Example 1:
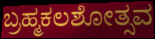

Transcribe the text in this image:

ಬ್ರಹ್ಮಕಲಶೋತ್ಸವ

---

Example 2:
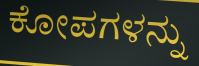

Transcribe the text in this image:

ಕೋಪಗಳನ್ನು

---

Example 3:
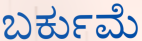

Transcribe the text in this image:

ಬರ್ಕುಮೆ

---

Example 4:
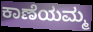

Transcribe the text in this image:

ಕಾಣೆಯಮ್ಮ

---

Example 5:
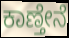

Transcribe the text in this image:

ಕಾಣ್ತೇನೆ